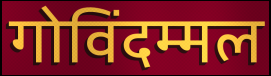
गोविंदम्मल